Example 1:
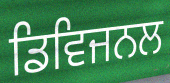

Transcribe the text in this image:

ਡਿਵਿਜਨਲ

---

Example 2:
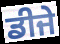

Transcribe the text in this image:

ਡੀਜੇ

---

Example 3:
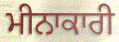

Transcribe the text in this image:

ਮੀਨਾਕਾਰੀ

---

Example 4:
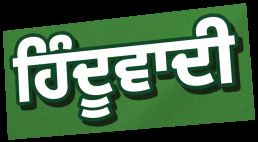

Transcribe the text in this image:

ਹਿੰਦੂਵਾਦੀ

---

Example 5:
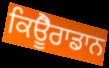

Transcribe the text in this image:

ਕਿਊੈਰਾਡਾਨ